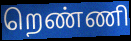
றெண்ணி